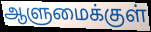
ஆளுமைக்குள்